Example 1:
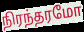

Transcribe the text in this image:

நிரந்தரமோ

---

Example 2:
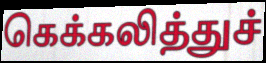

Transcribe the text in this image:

கெக்கலித்துச்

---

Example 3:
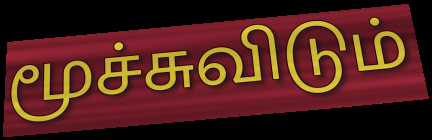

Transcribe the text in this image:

மூச்சுவிடும்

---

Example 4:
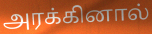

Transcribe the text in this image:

அரக்கினால்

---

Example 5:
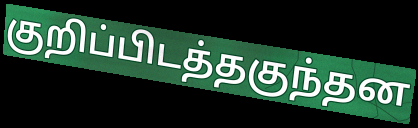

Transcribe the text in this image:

குறிப்பிடத்தகுந்தன